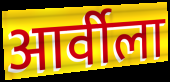
आर्वीला